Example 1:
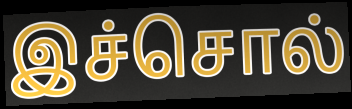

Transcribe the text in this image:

இச்சொல்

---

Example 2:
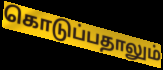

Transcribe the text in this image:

கொடுப்பதாலும்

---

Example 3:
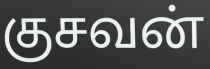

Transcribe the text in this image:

குசவன்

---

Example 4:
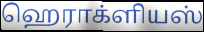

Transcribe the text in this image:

ஹெராக்ளியஸ்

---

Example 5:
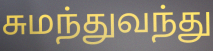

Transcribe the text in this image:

சுமந்துவந்து